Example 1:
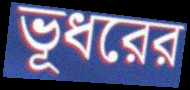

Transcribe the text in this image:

ভূধরের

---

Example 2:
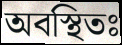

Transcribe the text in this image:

অবস্থিতঃ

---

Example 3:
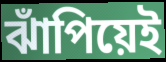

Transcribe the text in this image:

ঝাঁপিয়েই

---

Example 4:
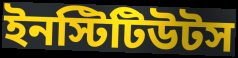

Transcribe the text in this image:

ইনস্টিটিউটস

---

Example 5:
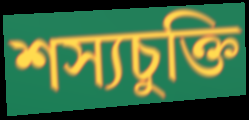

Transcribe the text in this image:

শস্যচুক্তি